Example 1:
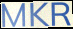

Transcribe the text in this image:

MKR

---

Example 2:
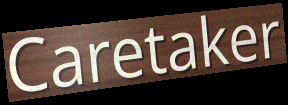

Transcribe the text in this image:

Caretaker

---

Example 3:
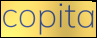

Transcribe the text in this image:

copita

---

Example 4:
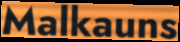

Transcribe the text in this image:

Malkauns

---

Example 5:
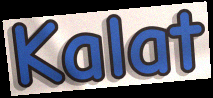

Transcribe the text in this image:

Kalat